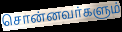
சொன்னவர்களும்